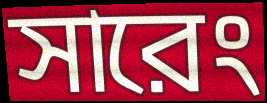
সারেং